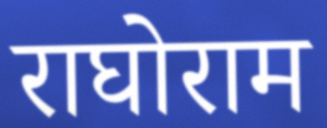
राघोराम